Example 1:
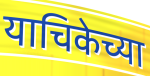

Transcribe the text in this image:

याचिकेच्या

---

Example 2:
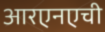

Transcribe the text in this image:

आरएनएची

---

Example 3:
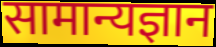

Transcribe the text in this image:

सामान्यज्ञान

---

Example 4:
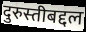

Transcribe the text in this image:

दुरुस्तीबद्दल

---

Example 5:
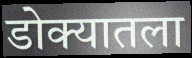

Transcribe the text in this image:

डोक्‍यातला